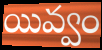
యివ్వం